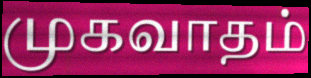
முகவாதம்